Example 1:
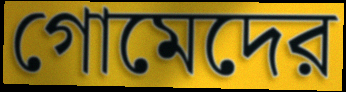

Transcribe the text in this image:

গোমেদের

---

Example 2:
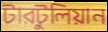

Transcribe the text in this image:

টারটুলিয়ান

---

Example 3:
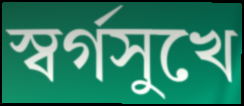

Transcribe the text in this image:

স্বর্গসুখে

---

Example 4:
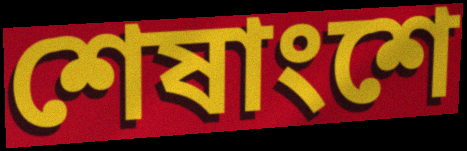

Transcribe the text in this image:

শেষাংশে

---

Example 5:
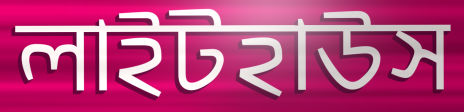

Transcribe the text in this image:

লাইটহাউস